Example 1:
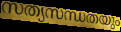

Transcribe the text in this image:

സത്യസന്ധതയും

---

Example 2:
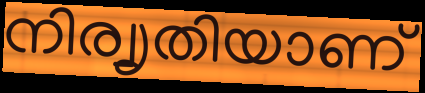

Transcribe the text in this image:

നിര്വൃതിയാണ്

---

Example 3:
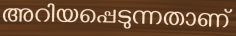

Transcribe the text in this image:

അറിയപ്പെടുന്നതാണ്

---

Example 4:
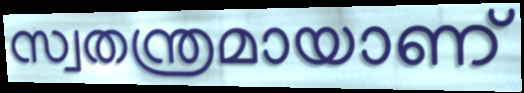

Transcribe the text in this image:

സ്വതന്ത്രമായാണ്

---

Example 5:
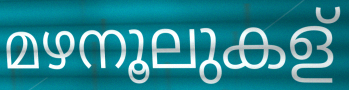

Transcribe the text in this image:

മഴനൂലുകള്